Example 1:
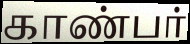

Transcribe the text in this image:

காண்பர்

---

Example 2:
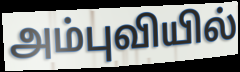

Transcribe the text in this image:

அம்புவியில்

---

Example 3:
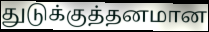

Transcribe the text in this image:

துடுக்குத்தனமான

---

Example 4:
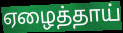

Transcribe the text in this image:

ஏழைத்தாய்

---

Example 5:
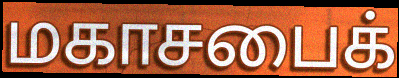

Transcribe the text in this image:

மகாசபைக்